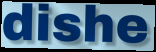
dishe